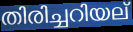
തിരിച്ചറിയല്